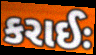
કરાઈઃ